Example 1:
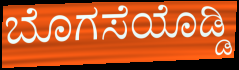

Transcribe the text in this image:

ಬೊಗಸೆಯೊಡ್ಡಿ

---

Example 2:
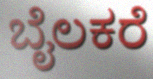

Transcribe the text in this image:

ಬೈಲಕರೆ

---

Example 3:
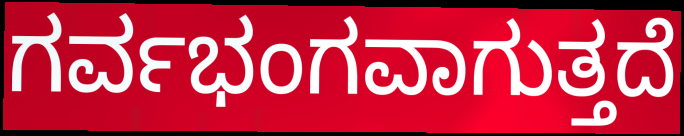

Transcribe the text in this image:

ಗರ್ವಭಂಗವಾಗುತ್ತದೆ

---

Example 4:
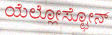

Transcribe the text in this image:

ಯೆಲ್ಲೋಸ್ಟೋನ್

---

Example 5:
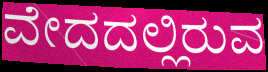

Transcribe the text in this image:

ವೇದದಲ್ಲಿರುವ